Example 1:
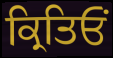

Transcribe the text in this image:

ਕ੍ਰਿਤਿਓਂ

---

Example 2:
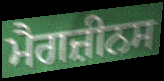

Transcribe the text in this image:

ਮੈਗਜ਼ੀਨਸ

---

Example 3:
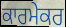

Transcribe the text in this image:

ਕਾਰਮੇਕਰ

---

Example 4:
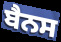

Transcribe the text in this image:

ਬੈਨਸ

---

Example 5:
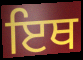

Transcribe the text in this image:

ਇਥ